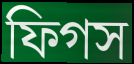
ফিগস